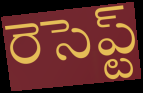
రెసెప్ట్